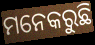
ମନେକରୁଛି